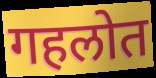
गहलोत